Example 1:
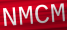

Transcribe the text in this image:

NMCM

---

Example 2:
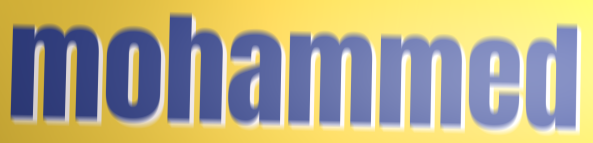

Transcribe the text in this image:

mohammed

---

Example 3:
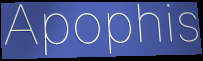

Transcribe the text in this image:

Apophis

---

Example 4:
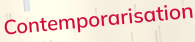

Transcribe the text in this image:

Contemporarisation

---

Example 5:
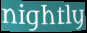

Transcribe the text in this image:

nightly